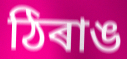
ঠিৰাঙ